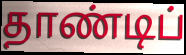
தாண்டிப்